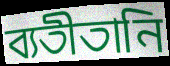
ব্যতীতানি